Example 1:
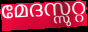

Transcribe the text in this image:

മേദസ്സുറ്റ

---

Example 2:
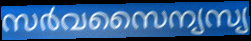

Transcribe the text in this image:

സർവസൈന്യസ്യ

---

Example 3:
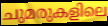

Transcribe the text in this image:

ചുമരുകളിലെ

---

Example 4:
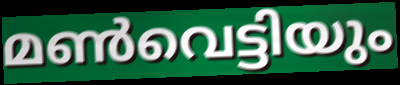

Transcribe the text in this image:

മൺവെട്ടിയും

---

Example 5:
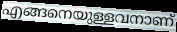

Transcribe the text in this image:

എങ്ങനെയുള്ളവനാണ്